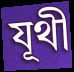
যূথী